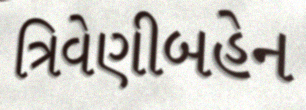
ત્રિવેણીબહેન